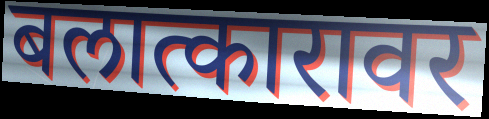
बलात्कारावर